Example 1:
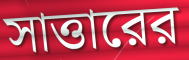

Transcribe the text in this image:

সাত্তারের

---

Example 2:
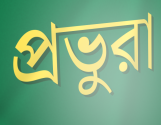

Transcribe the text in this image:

প্রভুরা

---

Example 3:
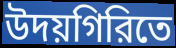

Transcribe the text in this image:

উদয়গিরিতে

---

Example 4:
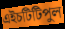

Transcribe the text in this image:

এইচটিটিপুল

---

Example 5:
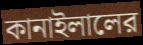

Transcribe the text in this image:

কানাইলালের